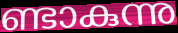
ണ്ടാകുന്നു